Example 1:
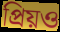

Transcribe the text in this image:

প্রিয়ও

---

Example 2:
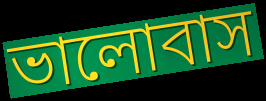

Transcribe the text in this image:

ভালোবাস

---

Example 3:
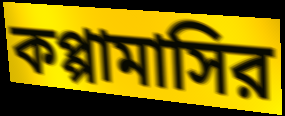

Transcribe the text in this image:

কপ্পামাসির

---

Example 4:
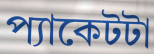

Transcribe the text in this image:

প্যাকেটটা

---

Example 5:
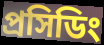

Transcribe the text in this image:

প্রসিডিং